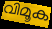
വിമൂക